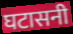
घटासनी